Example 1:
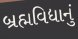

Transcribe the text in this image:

બ્રહ્મવિદ્યાનું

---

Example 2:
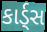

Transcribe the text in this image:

કાર્ડ્સ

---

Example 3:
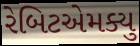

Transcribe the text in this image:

રેબિટએમક્યુ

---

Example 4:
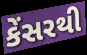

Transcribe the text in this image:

કેંસરથી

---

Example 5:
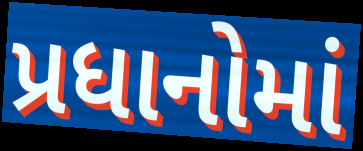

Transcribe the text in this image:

પ્રધાનોમાં